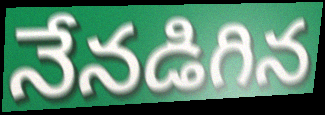
నేనడిగిన